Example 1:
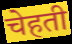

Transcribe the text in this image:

चेहती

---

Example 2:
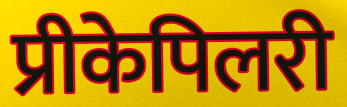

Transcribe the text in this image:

प्रीकेपिलरी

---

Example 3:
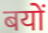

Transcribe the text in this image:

बयों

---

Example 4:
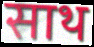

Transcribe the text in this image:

साथ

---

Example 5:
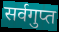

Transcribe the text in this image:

सर्वगुप्त